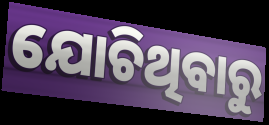
ଯୋଚିଥିବାରୁ